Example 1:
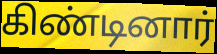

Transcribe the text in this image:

கிண்டினார்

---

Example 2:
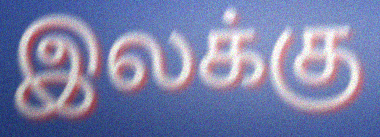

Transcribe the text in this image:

இலக்கு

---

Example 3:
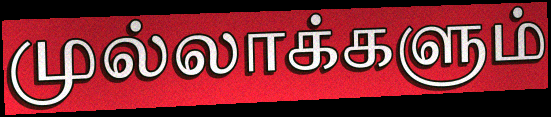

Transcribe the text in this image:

முல்லாக்களும்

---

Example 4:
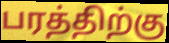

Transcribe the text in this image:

பரத்திற்கு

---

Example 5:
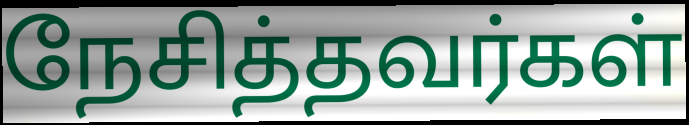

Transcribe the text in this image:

நேசித்தவர்கள்